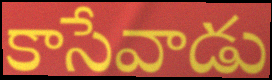
కాసేవాడు